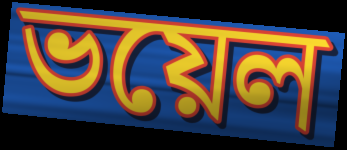
ভয়েল